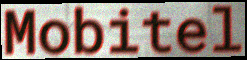
Mobitel